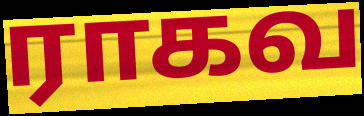
ராகவ